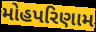
મોહપરિણામ